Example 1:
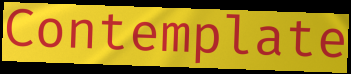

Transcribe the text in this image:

Contemplate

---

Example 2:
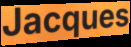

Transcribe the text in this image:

Jacques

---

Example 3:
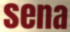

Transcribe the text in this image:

sena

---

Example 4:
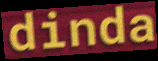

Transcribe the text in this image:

dinda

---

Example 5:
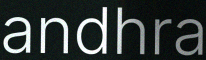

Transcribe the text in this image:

andhra